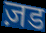
ज़ड